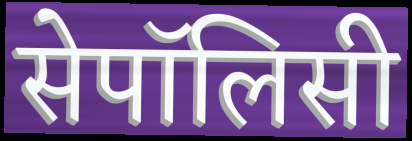
सेपॉलिसी